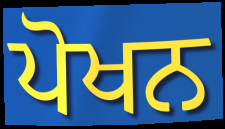
ਪੋਖਨ